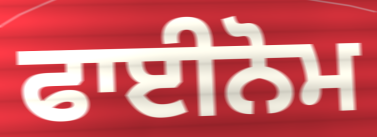
ਫਾਈਨੋਮ